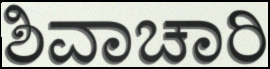
ಶಿವಾಚಾರಿ